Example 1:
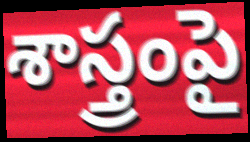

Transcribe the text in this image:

శాస్త్రంపై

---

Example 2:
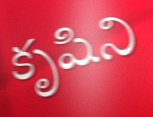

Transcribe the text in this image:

కృషిని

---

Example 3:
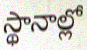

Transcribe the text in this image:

స్థానాల్లో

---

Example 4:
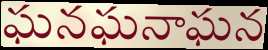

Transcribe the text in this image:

ఘనఘనాఘన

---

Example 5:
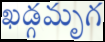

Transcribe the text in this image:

ఖడ్గమృగ